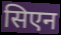
सिएन